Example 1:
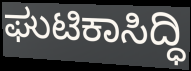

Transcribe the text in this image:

ಘುಟಿಕಾಸಿದ್ಧಿ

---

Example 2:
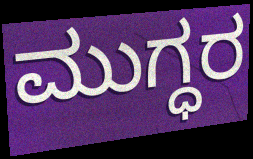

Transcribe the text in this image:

ಮುಗ್ಧರ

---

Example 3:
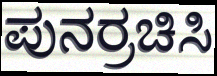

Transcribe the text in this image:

ಪುನರ್ರಚಿಸಿ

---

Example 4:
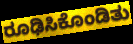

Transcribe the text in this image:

ರೂಢಿಸಿಕೊಂಡಿತು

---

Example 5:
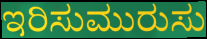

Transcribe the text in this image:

ಇರಿಸುಮುರುಸು